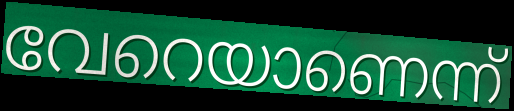
വേറെയാണെന്ന്